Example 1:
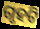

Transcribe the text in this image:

ଗୃହଟି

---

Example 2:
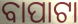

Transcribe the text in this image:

ବାପାଟା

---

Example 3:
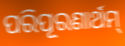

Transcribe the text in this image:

ପରିପୂରଣାର୍ଥମ୍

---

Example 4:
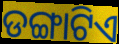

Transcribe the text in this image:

ଡଙ୍ଗାଟିଏ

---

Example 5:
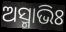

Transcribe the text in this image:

ଅସ୍ମାଭିଃ